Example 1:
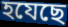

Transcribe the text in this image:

হযেছে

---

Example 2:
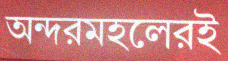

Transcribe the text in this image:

অন্দরমহলেরই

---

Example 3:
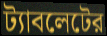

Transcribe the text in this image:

ট্যাবলেটের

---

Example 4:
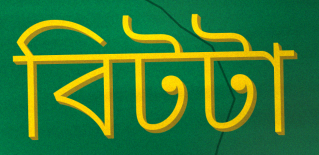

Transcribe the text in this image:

বিটটা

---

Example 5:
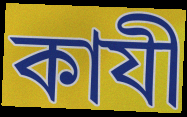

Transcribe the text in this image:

কাযী